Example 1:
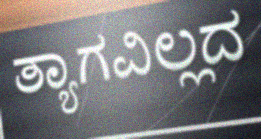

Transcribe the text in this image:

ತ್ಯಾಗವಿಲ್ಲದ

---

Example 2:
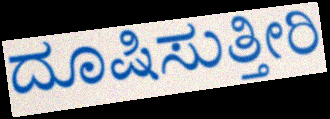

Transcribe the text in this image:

ದೂಷಿಸುತ್ತೀರಿ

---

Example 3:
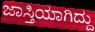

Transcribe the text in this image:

ಜಾಸ್ತಿಯಾಗಿದ್ದು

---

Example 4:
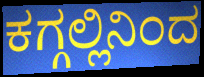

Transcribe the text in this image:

ಕಗ್ಗಲ್ಲಿನಿಂದ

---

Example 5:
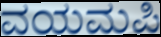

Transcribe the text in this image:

ವಯಮಪಿ